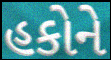
હકોને